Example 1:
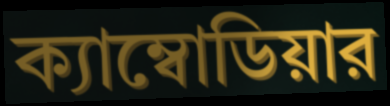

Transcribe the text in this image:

ক্যাম্বোডিয়ার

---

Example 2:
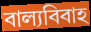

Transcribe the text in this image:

বাল্যবিবাহ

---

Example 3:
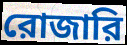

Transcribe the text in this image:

রোজারি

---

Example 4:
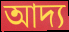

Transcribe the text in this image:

আদ্য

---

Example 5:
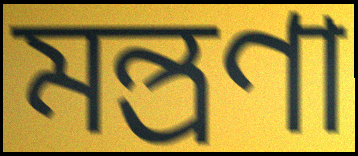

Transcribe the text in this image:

মন্ত্রণা